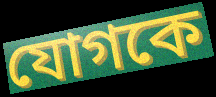
যোগকে